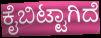
ಕೈಬಿಟ್ಟಾಗಿದೆ